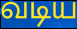
வடிய